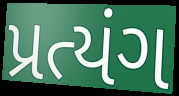
પ્રત્યંગ